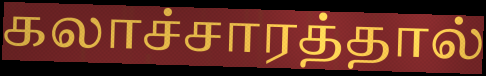
கலாச்சாரத்தால்